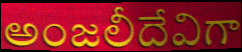
అంజలీదేవిగా